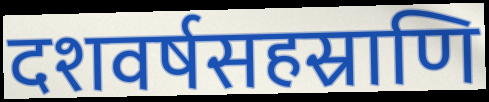
दशवर्षसहस्राणि